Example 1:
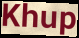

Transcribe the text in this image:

Khup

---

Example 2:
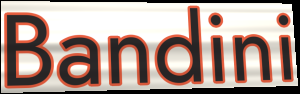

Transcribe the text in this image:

Bandini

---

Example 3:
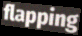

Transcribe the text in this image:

flapping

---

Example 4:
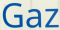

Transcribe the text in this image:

Gaz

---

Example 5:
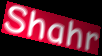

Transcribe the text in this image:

Shahr